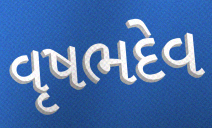
વૃષભદેવ